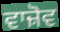
ਵਾਜ਼ੋਵ